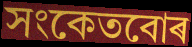
সংকেতবোৰ